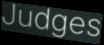
Judges